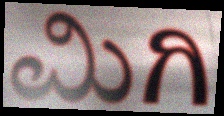
ಮಿಗಿ